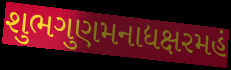
શુભગુણમનાદ્યક્ષરમહં